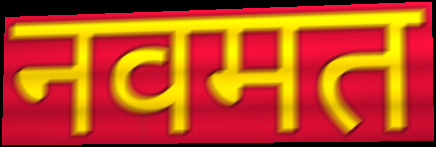
नवमत